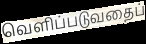
வெளிப்படுவதைப்